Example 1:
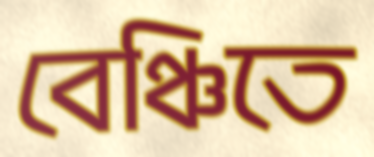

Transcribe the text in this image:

বেঞ্চিতে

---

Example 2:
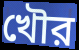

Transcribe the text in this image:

খৌর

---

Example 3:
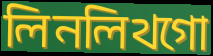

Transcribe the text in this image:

লিনলিথগো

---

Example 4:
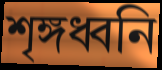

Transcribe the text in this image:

শৃঙ্গধ্বনি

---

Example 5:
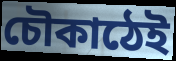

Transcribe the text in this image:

চৌকাঠেই